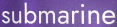
submarine